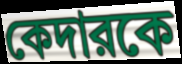
কেদারকে